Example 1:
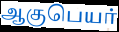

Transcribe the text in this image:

ஆகுபெயர்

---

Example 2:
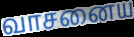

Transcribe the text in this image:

வாசனைய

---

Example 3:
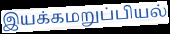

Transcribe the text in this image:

இயக்கமறுப்பியல்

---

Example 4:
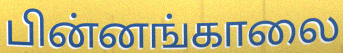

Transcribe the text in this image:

பின்னங்காலை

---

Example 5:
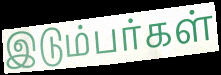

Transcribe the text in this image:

இடும்பர்கள்